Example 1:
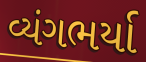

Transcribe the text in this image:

વ્યંગભર્યા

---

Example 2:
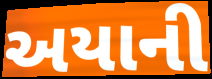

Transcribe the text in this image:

અયાની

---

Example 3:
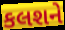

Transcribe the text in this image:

કલશને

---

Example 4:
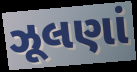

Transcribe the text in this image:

ઝૂલણાં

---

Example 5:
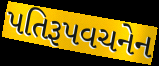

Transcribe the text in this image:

પતિરૂપવચનેન